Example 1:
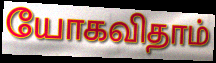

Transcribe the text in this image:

யோகவிதாம்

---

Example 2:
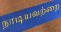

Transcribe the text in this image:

நாடியவற்றை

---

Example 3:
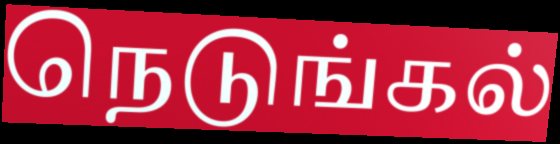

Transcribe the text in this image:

நெடுங்கல்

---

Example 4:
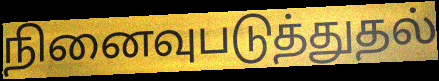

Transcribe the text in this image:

நினைவுபடுத்துதல்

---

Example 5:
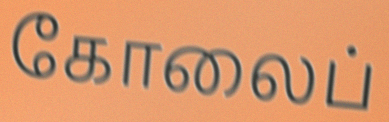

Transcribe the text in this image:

கோலைப்